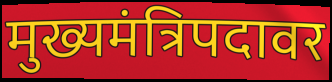
मुख्यमंत्रिपदावर